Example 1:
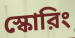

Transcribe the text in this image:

স্কোরিং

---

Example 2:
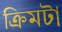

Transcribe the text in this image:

ক্রিমটা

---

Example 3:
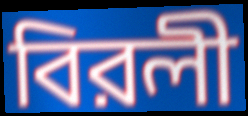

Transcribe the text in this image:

বিরলী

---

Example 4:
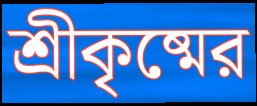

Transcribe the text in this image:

শ্রীকৃষ্মের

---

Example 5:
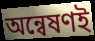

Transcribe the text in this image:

অন্বেষণই